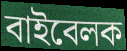
বাইবেলক